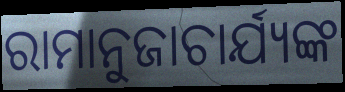
ରାମାନୁଜାଚାର୍ଯ୍ୟଙ୍କ